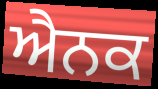
ਐਨਕ